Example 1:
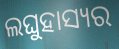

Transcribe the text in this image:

ଲଘୁହାସ୍ୟର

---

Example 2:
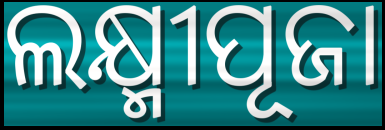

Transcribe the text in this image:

ଲକ୍ଷ୍ମୀପୂଜା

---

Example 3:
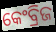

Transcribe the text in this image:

କେଂବ୍ରିଜ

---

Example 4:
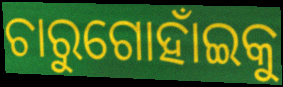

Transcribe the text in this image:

ଚାରୁଗୋହାଁଇକୁ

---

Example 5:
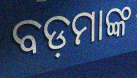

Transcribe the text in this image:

ବଡ଼ମାଙ୍କ